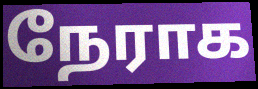
நேராக